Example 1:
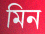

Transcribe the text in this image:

মিন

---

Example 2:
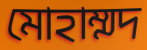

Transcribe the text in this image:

মোহাম্মদ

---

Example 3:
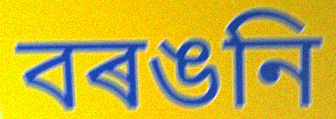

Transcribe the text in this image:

বৰঙনি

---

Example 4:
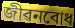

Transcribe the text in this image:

জীৱনবোধ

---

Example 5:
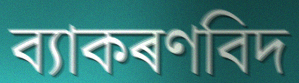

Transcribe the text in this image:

ব্যাকৰণবিদ